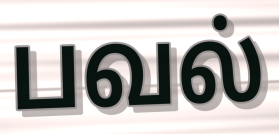
பவல்